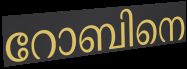
റോബിനെ